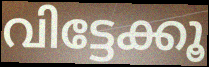
വിട്ടേക്കൂ